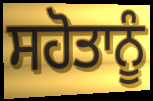
ਸਹੋਤਾਨੂੰ